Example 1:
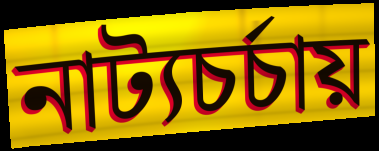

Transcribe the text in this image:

নাট্যচর্চায়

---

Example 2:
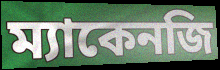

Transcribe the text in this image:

ম্যাকেনজি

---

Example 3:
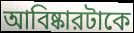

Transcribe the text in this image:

আবিষ্কারটাকে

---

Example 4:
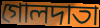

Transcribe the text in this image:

গোলদাতা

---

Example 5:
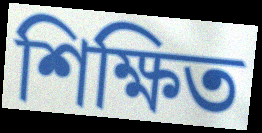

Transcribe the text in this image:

শিক্ষিত